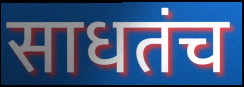
साधतंच